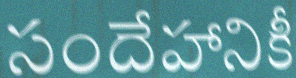
సందేహానికీ